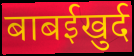
बाबईखुर्द